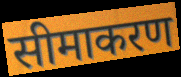
सीमाकरण